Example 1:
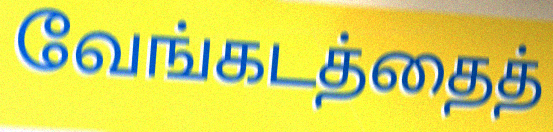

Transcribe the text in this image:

வேங்கடத்தைத்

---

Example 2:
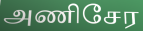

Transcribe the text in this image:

அணிசேர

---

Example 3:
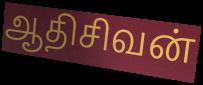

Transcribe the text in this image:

ஆதிசிவன்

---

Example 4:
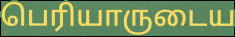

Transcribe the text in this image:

பெரியாருடைய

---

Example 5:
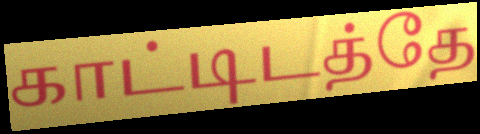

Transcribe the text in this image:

காட்டிடத்தே